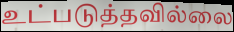
உட்படுத்தவில்லை